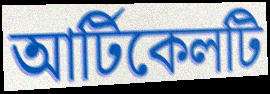
আর্টিকেলটি